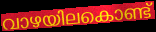
വാഴയിലകൊണ്ട്